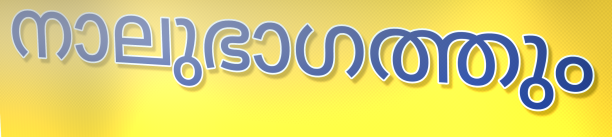
നാലുഭാഗത്തും